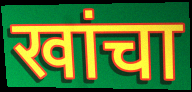
खांचा